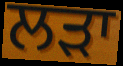
ਲੜਾ